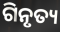
ଗିନୃତ୍ୟ